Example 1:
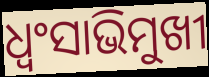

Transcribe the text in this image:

ଧ୍ଵଂସାଭିମୁଖୀ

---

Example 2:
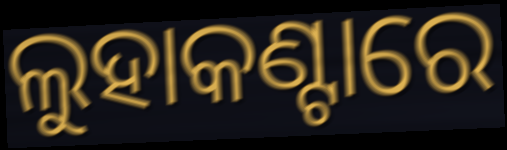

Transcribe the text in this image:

ଲୁହାକଣ୍ଟାରେ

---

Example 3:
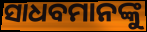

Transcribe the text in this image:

ସାଧବମାନଙ୍କୁ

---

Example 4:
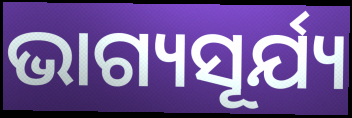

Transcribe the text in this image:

ଭାଗ୍ୟସୂର୍ଯ୍ୟ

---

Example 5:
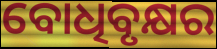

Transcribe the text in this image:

ବୋଧିବୃକ୍ଷର